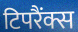
टिपरैंक्स